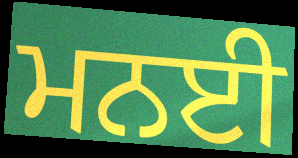
ਮਨਈ